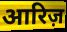
आरिज़